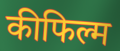
कीफिल्म